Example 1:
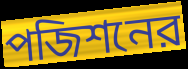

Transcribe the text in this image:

পজিশনের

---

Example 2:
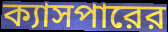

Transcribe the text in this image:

ক্যাসপারের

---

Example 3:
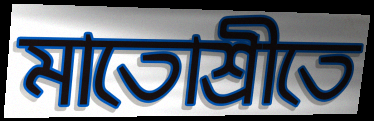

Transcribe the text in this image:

মাতোশ্রীতে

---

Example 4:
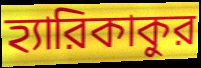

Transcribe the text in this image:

হ্যারিকাকুর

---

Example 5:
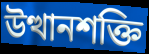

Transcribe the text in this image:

উত্থানশক্তি